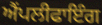
ਐਂਪਲੀਫਾਇੰਗ